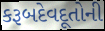
કરૂબદેવદૂતોની